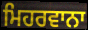
ਮਿਹਰਵਾਨਾ